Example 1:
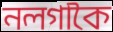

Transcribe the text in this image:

নলগাকৈ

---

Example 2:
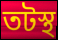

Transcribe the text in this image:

তটস্থ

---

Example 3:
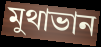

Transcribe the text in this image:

মুথাভান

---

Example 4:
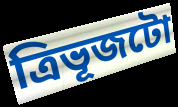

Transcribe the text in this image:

ত্ৰিভূজটো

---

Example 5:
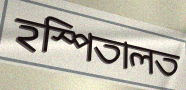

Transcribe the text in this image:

হস্পিতালত